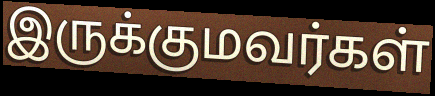
இருக்குமவர்கள்